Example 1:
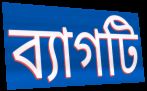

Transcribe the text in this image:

ব্যাগটি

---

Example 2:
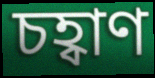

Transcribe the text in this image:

চহ্বাণ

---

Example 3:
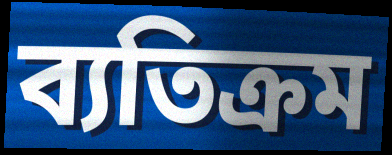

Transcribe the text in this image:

ব্যতিক্রম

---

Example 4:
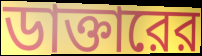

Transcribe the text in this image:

ডাক্তারের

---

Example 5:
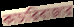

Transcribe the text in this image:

কাচারিবাজার